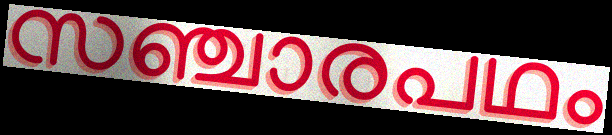
സഞ്ചാരപഥം